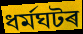
ধৰ্মঘটৰ